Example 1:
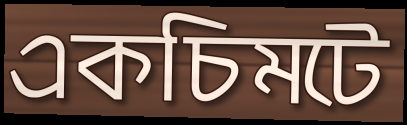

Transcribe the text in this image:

একচিমটে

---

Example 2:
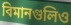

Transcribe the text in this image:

বিমানগুলিও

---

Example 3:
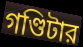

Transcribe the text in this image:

গণ্ডিটার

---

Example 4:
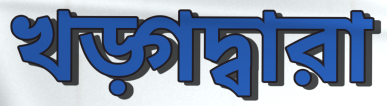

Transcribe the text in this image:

খড়্গদ্বারা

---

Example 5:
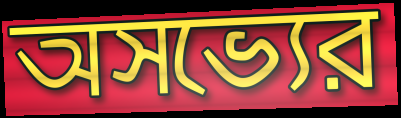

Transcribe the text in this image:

অসভ্যের